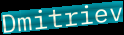
Dmitriev